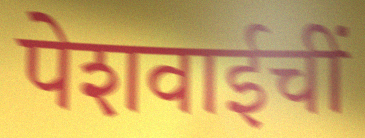
पेशवाईचीं